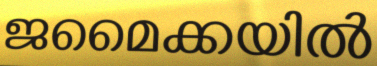
ജമൈക്കയിൽ